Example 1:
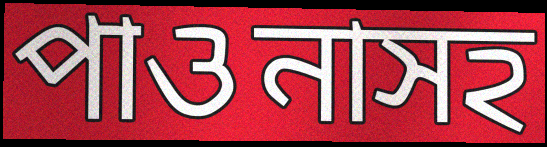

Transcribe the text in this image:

পাওনাসহ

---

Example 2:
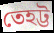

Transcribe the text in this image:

তেহট্ট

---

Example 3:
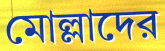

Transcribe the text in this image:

মোল্লাদের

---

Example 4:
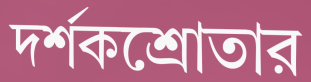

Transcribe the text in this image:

দর্শকশ্রোতার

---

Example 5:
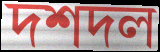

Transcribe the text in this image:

দশদল